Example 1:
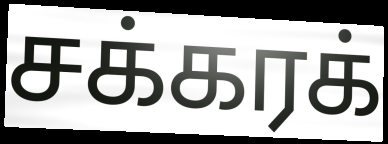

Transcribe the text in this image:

சக்கரக்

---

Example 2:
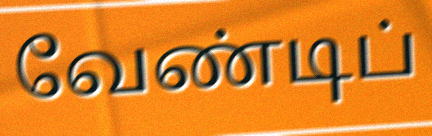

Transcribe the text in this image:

வேண்டிப்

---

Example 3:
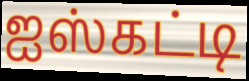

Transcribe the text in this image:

ஐஸ்கட்டி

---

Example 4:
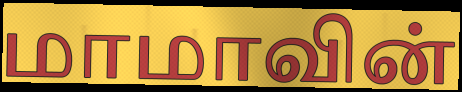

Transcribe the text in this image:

மாமாவின்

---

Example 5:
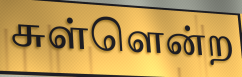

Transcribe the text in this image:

சுள்ளென்ற